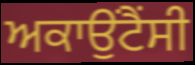
ਅਕਾਉਂਟੈਂਸੀ